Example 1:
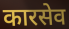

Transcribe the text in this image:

कारसेव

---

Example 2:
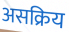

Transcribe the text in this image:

असक्रिय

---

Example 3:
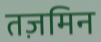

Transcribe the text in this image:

तज़मिन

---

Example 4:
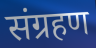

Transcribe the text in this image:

संग्रहण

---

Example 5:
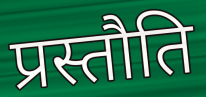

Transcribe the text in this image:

प्रस्तौति